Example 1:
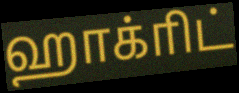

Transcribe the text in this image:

ஹாக்ரிட்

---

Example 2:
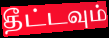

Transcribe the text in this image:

தீட்டவும்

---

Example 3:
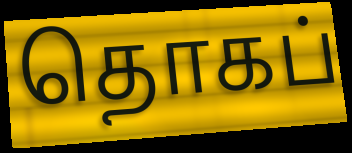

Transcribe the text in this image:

தொகப்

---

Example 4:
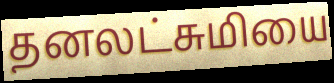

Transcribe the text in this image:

தனலட்சுமியை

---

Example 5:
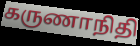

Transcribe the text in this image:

கருணாநிதி